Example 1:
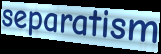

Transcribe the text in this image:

separatism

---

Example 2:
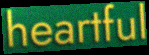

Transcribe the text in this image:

heartful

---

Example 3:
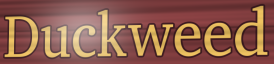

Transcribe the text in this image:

Duckweed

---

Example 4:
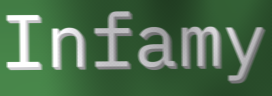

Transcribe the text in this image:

Infamy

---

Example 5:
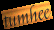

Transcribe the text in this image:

tumhee